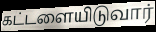
கட்டளையிடுவார்